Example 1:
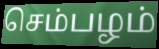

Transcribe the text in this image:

செம்பழம்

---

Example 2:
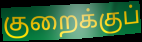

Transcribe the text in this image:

குறைக்குப்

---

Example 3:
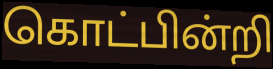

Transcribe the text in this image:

கொட்பின்றி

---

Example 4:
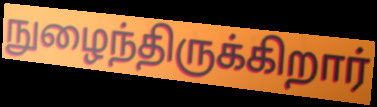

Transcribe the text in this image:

நுழைந்திருக்கிறார்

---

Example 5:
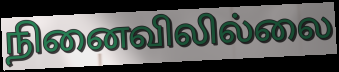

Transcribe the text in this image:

நினைவிலில்லை